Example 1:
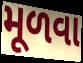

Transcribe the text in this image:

મૂળવા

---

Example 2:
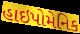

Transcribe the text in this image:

હાઇપોમેનિક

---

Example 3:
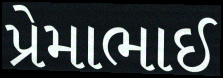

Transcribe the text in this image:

પ્રેમાભાઈ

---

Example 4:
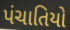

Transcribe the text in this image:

પંચાતિયો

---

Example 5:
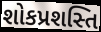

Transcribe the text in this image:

શોકપ્રશસ્તિ